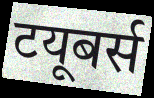
टयूबर्स